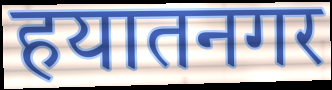
हयातनगर